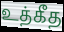
உத்கீத